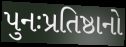
પુનઃપ્રતિષ્ઠાનો